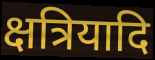
क्षत्रियादि